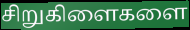
சிறுகிளைகளை